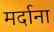
मर्दाना